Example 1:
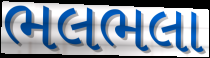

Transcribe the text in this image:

ભલભલા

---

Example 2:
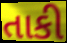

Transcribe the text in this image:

તાકી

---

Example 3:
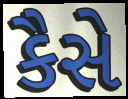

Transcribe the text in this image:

કૈસે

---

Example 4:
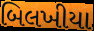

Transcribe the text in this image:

બિલખીયા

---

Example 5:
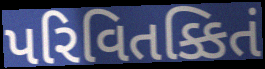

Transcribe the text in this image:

પરિવિતક્કિતં